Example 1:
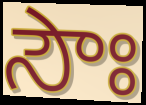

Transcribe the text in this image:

సౌః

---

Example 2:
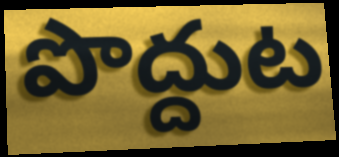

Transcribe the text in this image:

పొద్దుట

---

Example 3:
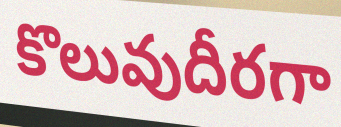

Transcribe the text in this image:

కొలువుదీరగా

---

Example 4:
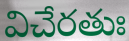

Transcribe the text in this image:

విచేరతుః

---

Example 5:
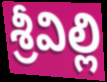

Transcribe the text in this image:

శ్రీవిల్లి